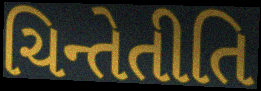
ચિન્તેતીતિ